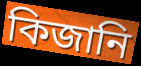
কিজানি